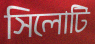
সিলোটি